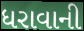
ધરાવાની